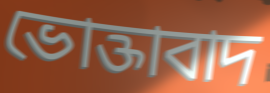
ভোক্তাবাদ